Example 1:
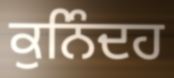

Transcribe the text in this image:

ਕੁਨਿੰਦਹ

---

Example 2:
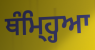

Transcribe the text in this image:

ਥੰਮ੍ਹ੍ਹਿਆ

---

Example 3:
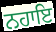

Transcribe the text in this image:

ਨਹਾਇ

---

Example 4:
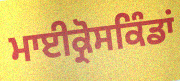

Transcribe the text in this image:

ਮਾਈਕ੍ਰੋਸਕਿੰਡਾਂ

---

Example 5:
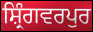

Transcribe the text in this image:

ਸ਼੍ਰਿੰਗਵਰਪੁਰ